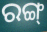
ରଙ୍ଗ୍